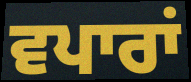
ਵਪਾਰਾਂ